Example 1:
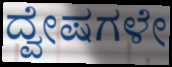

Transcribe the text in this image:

ದ್ವೇಷಗಳೇ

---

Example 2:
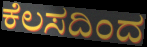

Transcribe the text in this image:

ಕೆಲಸದಿಂದ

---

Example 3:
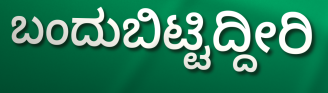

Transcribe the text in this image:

ಬಂದುಬಿಟ್ಟಿದ್ದೀರಿ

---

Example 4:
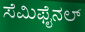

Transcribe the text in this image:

ಸೆಮಿಫೈನಲ್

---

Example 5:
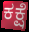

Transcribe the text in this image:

ಕಕ್ಷೆ